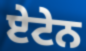
ਏਟੇਨ